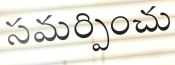
సమర్పించు